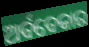
ଅର୍ବବେକାର